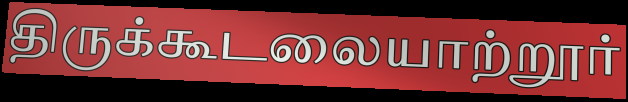
திருக்கூடலையாற்றூர்